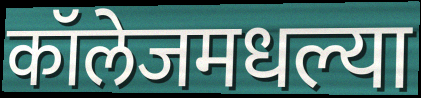
कॉलेजमधल्या